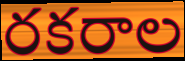
రకరాల